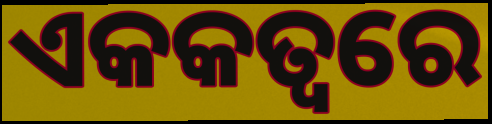
ଏକକତ୍ୱରେ